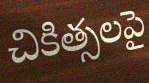
చికిత్సలపై